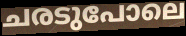
ചരടുപോലെ